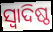
ସ୍ୱାଦିଷ୍ଠ